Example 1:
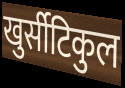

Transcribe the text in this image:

खुर्सीटिकुल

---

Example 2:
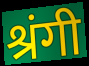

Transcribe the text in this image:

श्रंगी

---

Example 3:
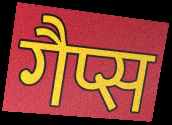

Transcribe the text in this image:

गैप्स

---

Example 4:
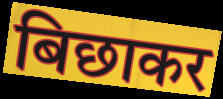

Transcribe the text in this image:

बिछाकर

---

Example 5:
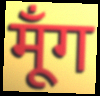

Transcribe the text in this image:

मूँग